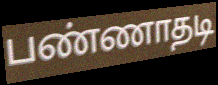
பண்ணாதடி